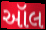
ઑલ